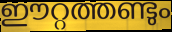
ഈറ്റത്തണ്ടും